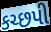
કચ્છપી